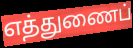
எத்துணைப்